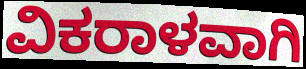
ವಿಕರಾಳವಾಗಿ